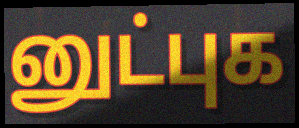
னுட்புக